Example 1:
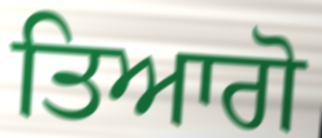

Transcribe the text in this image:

ਤਿਆਗੋ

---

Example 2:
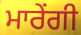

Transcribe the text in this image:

ਮਾਰੇਂਗੀ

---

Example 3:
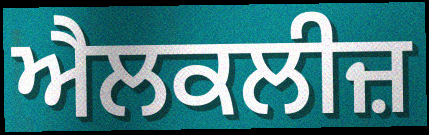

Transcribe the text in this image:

ਐਲਕਲੀਜ਼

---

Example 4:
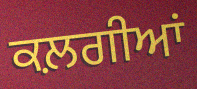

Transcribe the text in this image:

ਕਲ਼ਗੀਆਂ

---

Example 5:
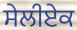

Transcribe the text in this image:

ਸੇਲੀਏਕ